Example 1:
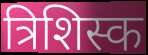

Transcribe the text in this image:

त्रिशिस्क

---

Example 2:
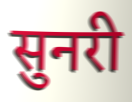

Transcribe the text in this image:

सुनरी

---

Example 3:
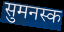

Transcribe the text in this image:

सुमनस्क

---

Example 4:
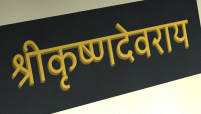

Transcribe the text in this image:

श्रीकृष्णदेवराय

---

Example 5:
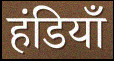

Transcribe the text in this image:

हंडियाँ